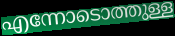
എന്നോടൊത്തുള്ള